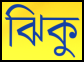
ঝিকু